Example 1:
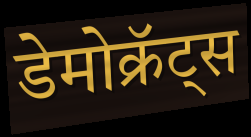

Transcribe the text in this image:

डेमोक्रॅट्स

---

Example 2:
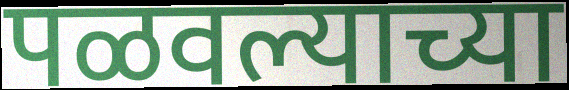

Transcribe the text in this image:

पळवल्याच्या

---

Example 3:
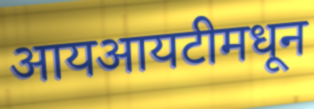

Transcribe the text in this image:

आयआयटीमधून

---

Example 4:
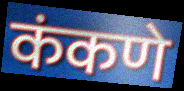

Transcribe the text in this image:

कंकणे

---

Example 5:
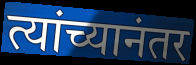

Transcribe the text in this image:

त्यांच्यानंतर